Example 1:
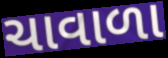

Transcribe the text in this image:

ચાવાળા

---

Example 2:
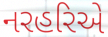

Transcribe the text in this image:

નરહરિએ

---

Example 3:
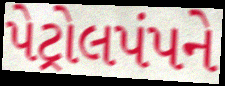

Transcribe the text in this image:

પેટ્રોલપંપને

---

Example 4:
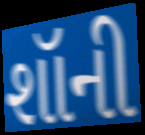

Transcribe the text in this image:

શૉની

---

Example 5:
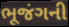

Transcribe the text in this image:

ભૂજંગની